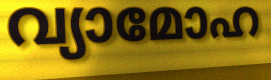
വ്യാമോഹ